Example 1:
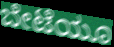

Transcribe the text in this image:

ಬೇಟೆಯೂ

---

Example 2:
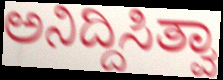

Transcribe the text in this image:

ಅನಿದ್ದಿಸಿತ್ವಾ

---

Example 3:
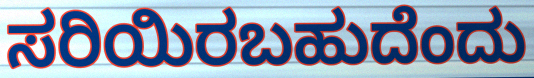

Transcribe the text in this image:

ಸರಿಯಿರಬಹುದೆಂದು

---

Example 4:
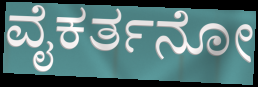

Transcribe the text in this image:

ವೈಕರ್ತನೋ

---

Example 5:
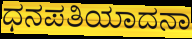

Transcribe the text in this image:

ಧನಪತಿಯಾದನಾ